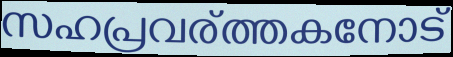
സഹപ്രവര്ത്തകനോട്